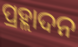
ପ୍ରହ୍ଲାଦନ